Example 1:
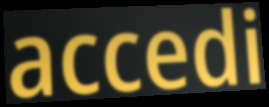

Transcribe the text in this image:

accedi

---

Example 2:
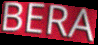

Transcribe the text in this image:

BERA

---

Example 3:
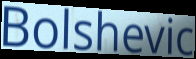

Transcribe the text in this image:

Bolshevic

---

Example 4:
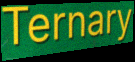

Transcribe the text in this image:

Ternary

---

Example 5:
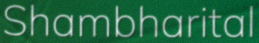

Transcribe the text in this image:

Shambharital